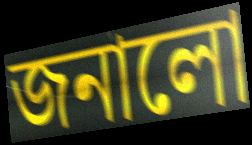
জনালো